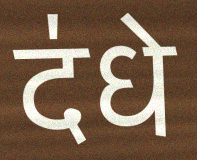
द॑धे